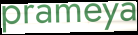
prameya